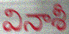
వినాశీ